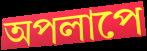
অপলাপে